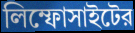
লিম্ফোসাইটের